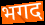
भगद